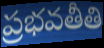
ప్రభవతీతి